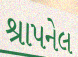
શ્રાપનેલ